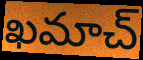
ఖమాచ్